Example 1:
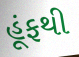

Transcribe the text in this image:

હૂંફથી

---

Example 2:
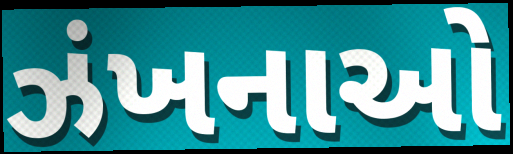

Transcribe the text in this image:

ઝંખનાઓ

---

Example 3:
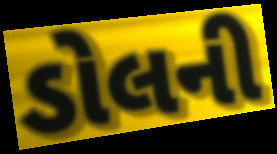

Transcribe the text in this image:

ડોલની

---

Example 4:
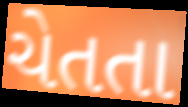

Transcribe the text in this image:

ચેતતા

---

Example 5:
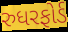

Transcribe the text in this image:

રુધરફોર્ડ